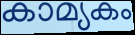
കാമ്യകം